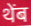
थेंब